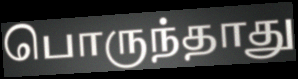
பொருந்தாது